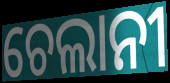
ଚେଲାନୀ